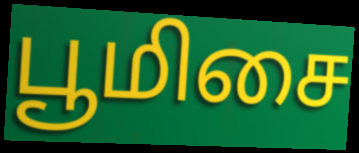
பூமிசை